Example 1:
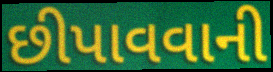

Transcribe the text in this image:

છીપાવવાની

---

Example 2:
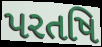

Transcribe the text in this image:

પરતષિ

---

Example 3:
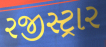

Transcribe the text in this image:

રજીસ્ટ્રાર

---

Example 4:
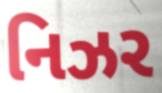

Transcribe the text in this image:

નિઝર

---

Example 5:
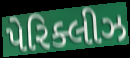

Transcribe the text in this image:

પેરિક્લીઝ